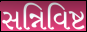
સન્નિવિષ્ટ